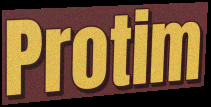
Protim